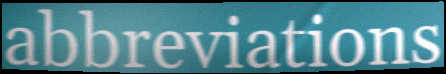
abbreviations